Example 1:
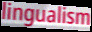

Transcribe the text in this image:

lingualism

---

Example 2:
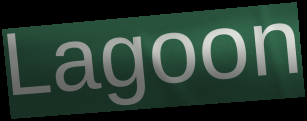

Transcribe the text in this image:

Lagoon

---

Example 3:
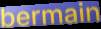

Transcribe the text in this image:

bermain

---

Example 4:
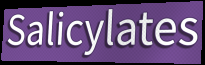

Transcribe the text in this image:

Salicylates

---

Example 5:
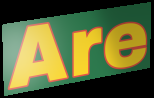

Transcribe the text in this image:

Are